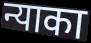
न्याका